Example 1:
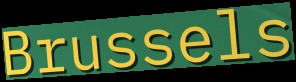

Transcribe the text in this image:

Brussels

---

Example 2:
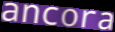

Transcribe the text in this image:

ancora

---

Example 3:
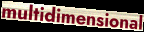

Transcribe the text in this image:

multidimensional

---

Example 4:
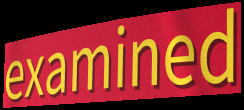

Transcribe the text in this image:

examined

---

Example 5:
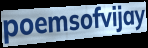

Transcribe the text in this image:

poemsofvijay